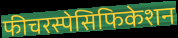
फीचरस्पेसिफिकेशन